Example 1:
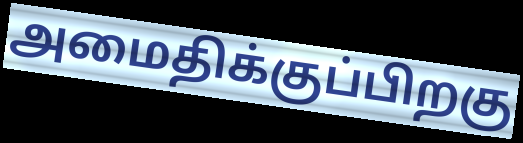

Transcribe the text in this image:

அமைதிக்குப்பிறகு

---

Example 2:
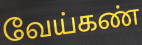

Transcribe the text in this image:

வேய்கண்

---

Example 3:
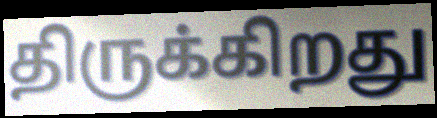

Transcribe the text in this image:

திருக்கிறது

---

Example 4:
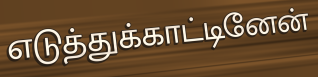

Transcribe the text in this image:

எடுத்துக்காட்டினேன்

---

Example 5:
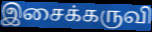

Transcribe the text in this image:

இசைக்கருவி